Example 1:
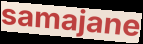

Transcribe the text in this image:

samajane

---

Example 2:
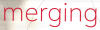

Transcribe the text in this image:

merging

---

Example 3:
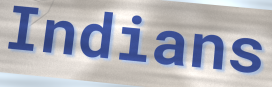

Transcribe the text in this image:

Indians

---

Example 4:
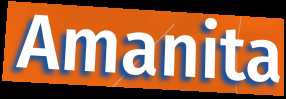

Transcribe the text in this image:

Amanita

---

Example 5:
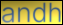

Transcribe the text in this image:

andh